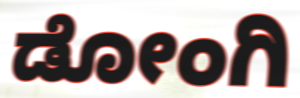
ಡೋಂಗಿ